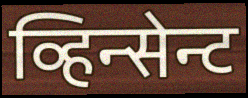
व्हिन्सेन्ट